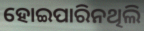
ହୋଇପାରିନଥିଲି